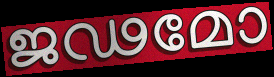
ജഢമോ